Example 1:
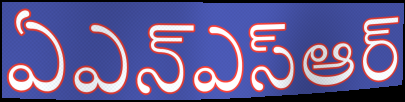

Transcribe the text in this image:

ఏఎన్ఎస్ఆర్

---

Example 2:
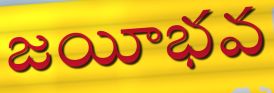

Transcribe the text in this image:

జయీభవ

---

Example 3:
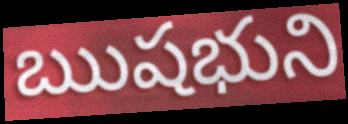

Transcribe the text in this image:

ఋషభుని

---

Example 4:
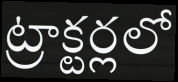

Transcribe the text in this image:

ట్రాక్టర్లలో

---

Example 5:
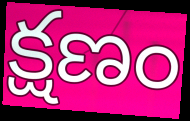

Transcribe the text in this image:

క్షణం